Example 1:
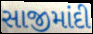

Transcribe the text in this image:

સાજીમાંદી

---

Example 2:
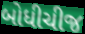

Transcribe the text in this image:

બોધીચીજ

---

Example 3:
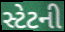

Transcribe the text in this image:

સ્ટેટની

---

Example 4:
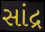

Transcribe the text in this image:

સાંદ્ર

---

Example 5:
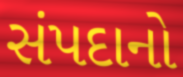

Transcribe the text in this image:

સંપદાનો